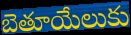
బెతూయేలుకు